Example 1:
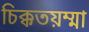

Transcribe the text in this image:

চিক্কতয়ম্মা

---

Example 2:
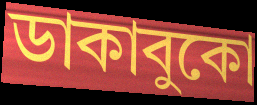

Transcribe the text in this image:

ডাকাবুকো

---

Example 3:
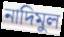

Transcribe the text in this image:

নাদিমুল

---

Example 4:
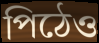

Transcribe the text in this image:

পিঠেও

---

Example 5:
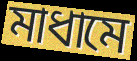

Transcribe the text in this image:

মাধামে